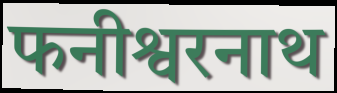
फनीश्वरनाथ